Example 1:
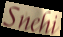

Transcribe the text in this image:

Snehi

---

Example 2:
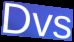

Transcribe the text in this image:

Dvs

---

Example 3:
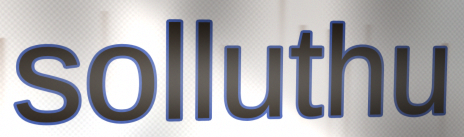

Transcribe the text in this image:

solluthu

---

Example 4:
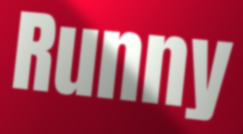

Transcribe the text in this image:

Runny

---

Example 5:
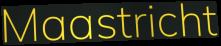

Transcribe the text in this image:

Maastricht